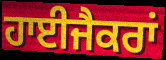
ਹਾਈਜੈਕਰਾਂ